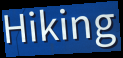
Hiking